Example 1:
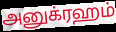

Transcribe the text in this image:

அனுக்ரஹம்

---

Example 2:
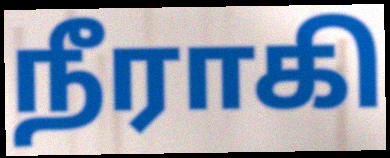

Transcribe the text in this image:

நீராகி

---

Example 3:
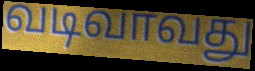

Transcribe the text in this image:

வடிவாவது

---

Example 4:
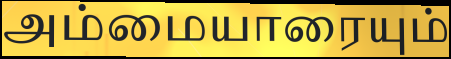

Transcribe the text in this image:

அம்மையாரையும்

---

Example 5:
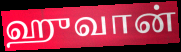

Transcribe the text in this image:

ஹுவான்